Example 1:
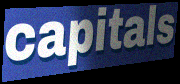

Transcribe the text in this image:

capitals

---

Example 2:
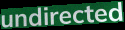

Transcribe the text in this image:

undirected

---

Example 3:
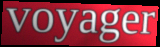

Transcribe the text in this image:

voyager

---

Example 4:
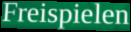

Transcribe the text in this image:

Freispielen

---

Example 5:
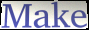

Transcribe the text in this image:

Make